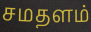
சமதளம்